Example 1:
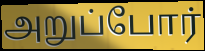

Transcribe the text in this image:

அறுப்போர்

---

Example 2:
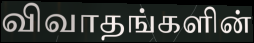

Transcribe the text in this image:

விவாதங்களின்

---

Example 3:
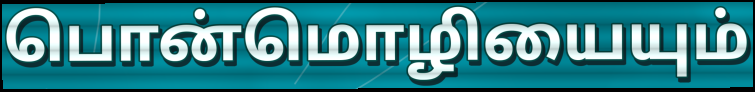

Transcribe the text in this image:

பொன்மொழியையும்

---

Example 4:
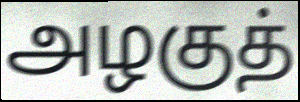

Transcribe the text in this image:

அழகுத்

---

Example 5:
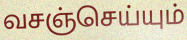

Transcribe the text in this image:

வசஞ்செய்யும்